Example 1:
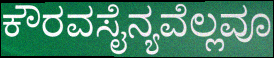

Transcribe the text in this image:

ಕೌರವಸೈನ್ಯವೆಲ್ಲವೂ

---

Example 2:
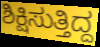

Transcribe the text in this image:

ಶಿಕ್ಷಿಸುತ್ತಿದ್ದ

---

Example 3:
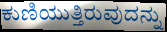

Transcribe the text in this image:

ಕುಣಿಯುತ್ತಿರುವುದನ್ನು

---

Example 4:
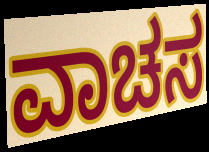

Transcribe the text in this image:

ವಾಚಸ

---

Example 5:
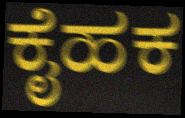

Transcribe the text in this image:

ಕೈಹಕ